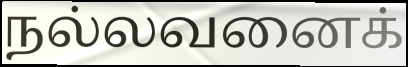
நல்லவனைக்